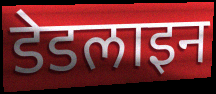
डेडलाइन